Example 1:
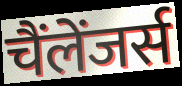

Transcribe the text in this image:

चैंलेंजर्स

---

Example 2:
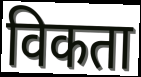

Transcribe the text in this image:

विकता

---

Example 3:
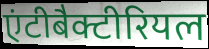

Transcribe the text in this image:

एंटीबैक्टीरियल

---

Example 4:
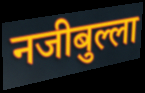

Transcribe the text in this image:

नजीबुल्ला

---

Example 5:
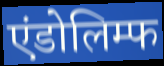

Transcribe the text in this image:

एंडोलिम्फ